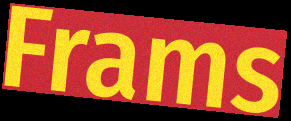
Frams